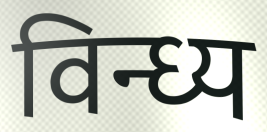
विन्ध्य